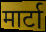
मार्टा